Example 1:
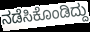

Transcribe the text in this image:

ನಡೆಸಿಕೊಂಡಿದ್ದು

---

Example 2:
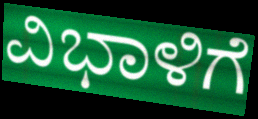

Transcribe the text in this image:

ವಿಭಾಳಿಗೆ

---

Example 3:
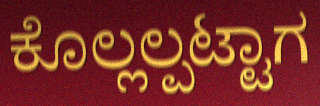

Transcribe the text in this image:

ಕೊಲ್ಲಲ್ಪಟ್ಟಾಗ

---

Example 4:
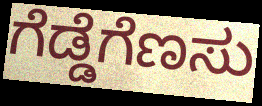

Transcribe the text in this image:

ಗೆಡ್ಡೆಗೆಣಸು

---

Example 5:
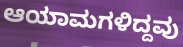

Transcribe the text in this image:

ಆಯಾಮಗಳಿದ್ದವು